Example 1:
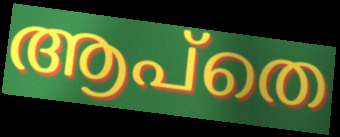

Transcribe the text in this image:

ആപ്‌തെ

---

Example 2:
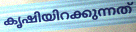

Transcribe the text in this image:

കൃഷിയിറക്കുന്നത്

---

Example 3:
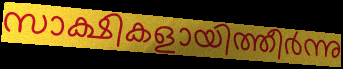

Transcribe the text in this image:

സാക്ഷികളായിത്തീർന്നു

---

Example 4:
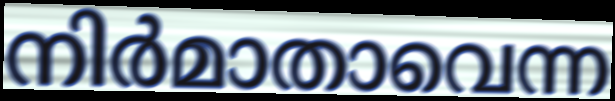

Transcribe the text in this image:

നിർമാതാവെന്ന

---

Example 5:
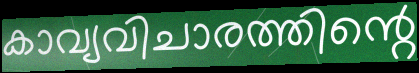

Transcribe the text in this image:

കാവ്യവിചാരത്തിന്റെ